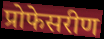
प्रोफेसरीण